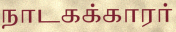
நாடகக்காரர்